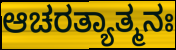
ಆಚರತ್ಯಾತ್ಮನಃ